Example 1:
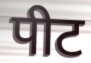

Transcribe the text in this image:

पीट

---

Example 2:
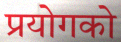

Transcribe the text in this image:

प्रयोगको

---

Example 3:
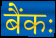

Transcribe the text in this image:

बैंकः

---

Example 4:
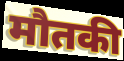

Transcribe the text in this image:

मौतकी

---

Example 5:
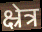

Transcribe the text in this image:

क्ष्रेत्र